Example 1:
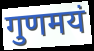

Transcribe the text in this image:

गुणमयं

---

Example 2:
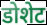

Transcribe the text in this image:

डोशेट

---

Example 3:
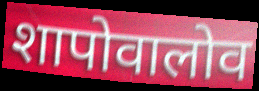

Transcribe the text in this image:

शापोवालोव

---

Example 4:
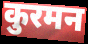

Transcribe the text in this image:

कुरमन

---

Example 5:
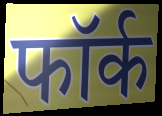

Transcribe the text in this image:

फॉर्क